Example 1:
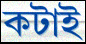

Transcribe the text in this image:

কটাই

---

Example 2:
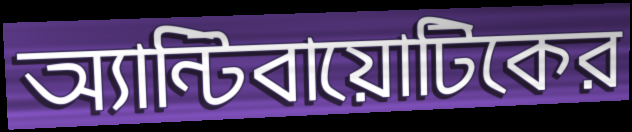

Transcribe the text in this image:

অ্যান্টিবায়োটিকের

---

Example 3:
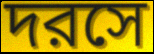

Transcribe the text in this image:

দরসে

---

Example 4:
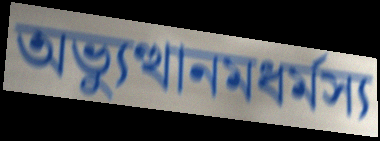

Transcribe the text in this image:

অভ্যুত্থানমধর্মস্য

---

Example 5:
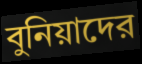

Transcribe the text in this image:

বুনিয়াদের